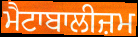
ਮੈਟਾਬਾਲੀਜ਼ਮ